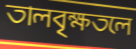
তালবৃক্ষতলে